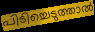
പിടിച്ചെടുത്താൽ